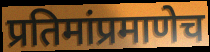
प्रतिमांप्रमाणेच